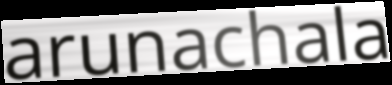
arunachala